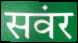
सवंर